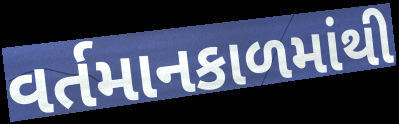
વર્તમાનકાળમાંથી